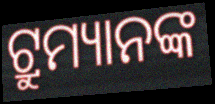
ଟ୍ରୁମ୍ୟାନଙ୍କ